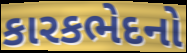
કારકભેદનો